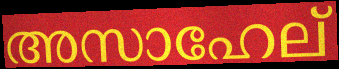
അസാഹേല്